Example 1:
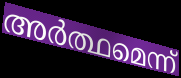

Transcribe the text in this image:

അർത്ഥമെന്ന്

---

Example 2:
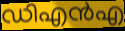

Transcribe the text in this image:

ഡിഎൻഎ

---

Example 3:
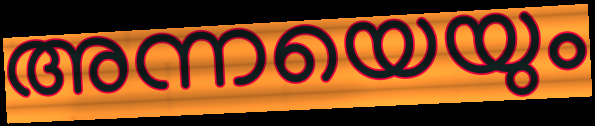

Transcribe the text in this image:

അന്നയെയും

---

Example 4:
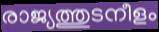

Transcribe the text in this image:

രാജ്യത്തുടനീളം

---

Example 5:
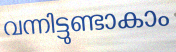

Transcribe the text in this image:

വന്നിട്ടുണ്ടാകാം